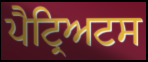
ਪੈਟ੍ਰਿਅਟਸ